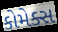
કોમેક્સ